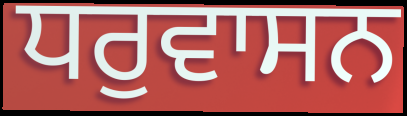
ਧਰੁਵਾਸਨ